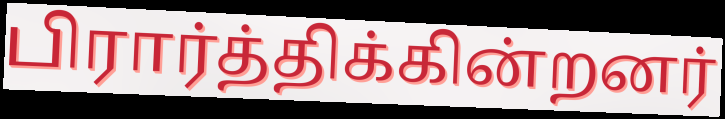
பிரார்த்திக்கின்றனர்